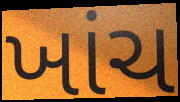
ખાંચ